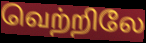
வெற்றிலே